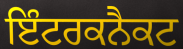
ਇੰਟਰਕਨੈਕਟ